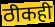
ठीकही